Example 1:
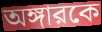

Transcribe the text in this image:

অঙ্গারকে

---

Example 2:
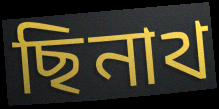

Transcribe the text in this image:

ছিনাথ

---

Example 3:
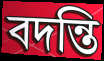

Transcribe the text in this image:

বদন্তি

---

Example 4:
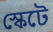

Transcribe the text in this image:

স্কেটে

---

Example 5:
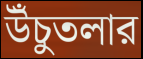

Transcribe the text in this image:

উঁচুতলার